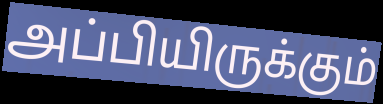
அப்பியிருக்கும்